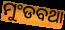
ମୁଂଡବଥା